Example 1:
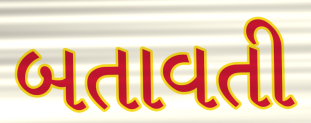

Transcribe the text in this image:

બતાવતી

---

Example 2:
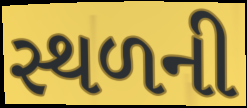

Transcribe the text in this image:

સ્થળની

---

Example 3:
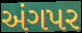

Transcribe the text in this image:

અંગપર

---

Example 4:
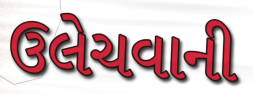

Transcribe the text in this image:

ઉલેચવાની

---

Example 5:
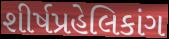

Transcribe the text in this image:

શીર્ષપ્રહેલિકાંગ